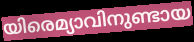
യിരെമ്യാവിനുണ്ടായ